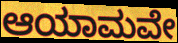
ಆಯಾಮವೇ